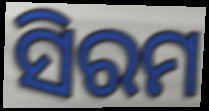
ସିରମ